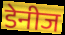
डेनीज